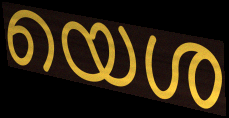
യെശ